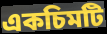
একচিমটি